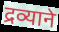
द्रव्याने